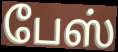
பேஸ்